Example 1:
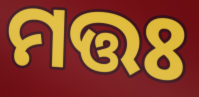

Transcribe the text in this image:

ମତ୍ତଃ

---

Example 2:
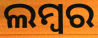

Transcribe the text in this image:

ଲମ୍ୱର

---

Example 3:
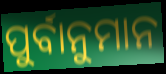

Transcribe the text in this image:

ପୁର୍ବାନୁମାନ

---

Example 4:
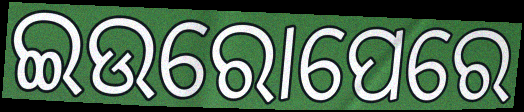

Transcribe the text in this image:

ଇଉରୋପେରେ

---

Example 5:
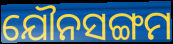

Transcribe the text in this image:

ଯୌନସଙ୍ଗମ